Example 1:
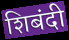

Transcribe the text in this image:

शिबंदी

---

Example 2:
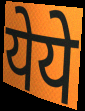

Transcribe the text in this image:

येये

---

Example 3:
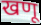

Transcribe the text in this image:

खणू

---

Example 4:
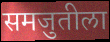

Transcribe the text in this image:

समजुतीला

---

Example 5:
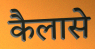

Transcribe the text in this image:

कैलासे